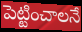
పెట్టించాలనే